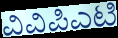
ವಿವಿಪಿಎಟಿ